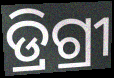
ଡ୍ରିଗ୍ରୀ